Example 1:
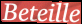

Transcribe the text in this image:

Beteille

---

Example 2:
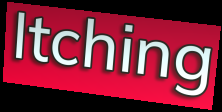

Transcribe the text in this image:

Itching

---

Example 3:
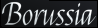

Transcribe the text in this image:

Borussia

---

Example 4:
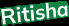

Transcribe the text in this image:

Ritisha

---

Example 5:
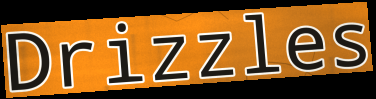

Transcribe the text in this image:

Drizzles